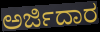
ಅರ್ಜಿದಾರ